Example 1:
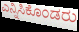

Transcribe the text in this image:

ಎನ್ನಿಸಿಕೊಂಡರು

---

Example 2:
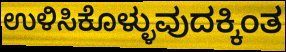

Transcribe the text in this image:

ಉಳಿಸಿಕೊಳ್ಳುವುದಕ್ಕಿಂತ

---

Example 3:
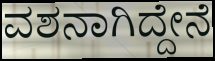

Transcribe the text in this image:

ವಶನಾಗಿದ್ದೇನೆ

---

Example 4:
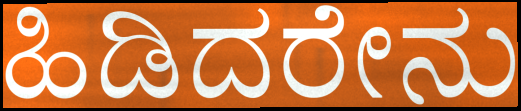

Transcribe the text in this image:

ಹಿಡಿದರೇನು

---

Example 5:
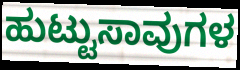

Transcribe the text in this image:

ಹುಟ್ಟುಸಾವುಗಳ